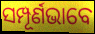
ସମ୍ପୂର୍ଣଭାବେ